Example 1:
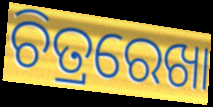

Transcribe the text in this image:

ଚିତ୍ରରେଖା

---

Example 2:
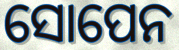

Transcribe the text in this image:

ସୋପେନ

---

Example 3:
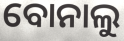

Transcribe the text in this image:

ବୋନାଲୁ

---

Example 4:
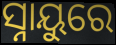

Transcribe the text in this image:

ସ୍ନାୟୁରେ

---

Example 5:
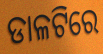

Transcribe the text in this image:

ଡାଳଟିରେ